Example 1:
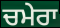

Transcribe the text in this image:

ਚਮੇਰਾ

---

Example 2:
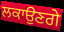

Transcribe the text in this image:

ਲਕਾਉਣਗੇ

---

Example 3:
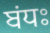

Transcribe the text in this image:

ਬਂਧਃ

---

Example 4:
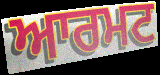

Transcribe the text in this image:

ਆਰਮਟ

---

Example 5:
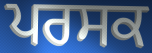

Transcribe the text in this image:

ਪਰਸਕ